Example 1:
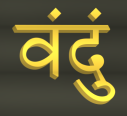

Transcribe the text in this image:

वंदुं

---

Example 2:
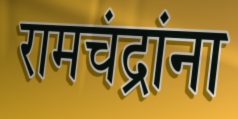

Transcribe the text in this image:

रामचंद्रांना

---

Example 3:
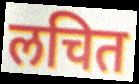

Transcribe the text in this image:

लचित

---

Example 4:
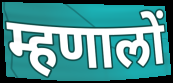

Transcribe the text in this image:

म्हणालों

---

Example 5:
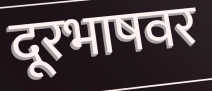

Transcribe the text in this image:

दूरभाषवर